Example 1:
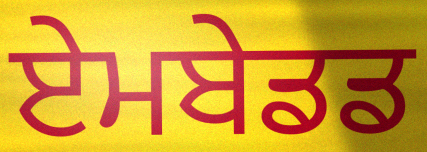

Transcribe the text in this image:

ਏਮਬੇਡਡ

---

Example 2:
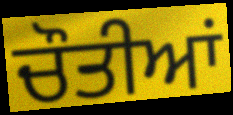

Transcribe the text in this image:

ਚੌਤੀਆਂ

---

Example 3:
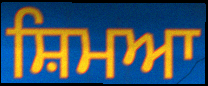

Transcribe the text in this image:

ਸ਼ਿਮਆ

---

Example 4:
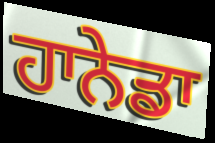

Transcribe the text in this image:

ਹਾਨੇਡਾ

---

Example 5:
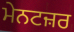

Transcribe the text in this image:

ਮੇਨਟਜ਼ਰ